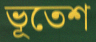
ভূতেশ